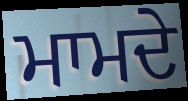
ਮਾਮਦੇ